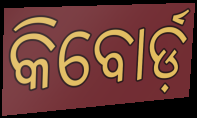
କିବୋର୍ଡ଼